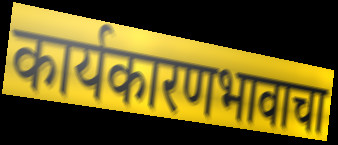
कार्यकारणभावाचा